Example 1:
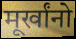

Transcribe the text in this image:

मूर्खांनो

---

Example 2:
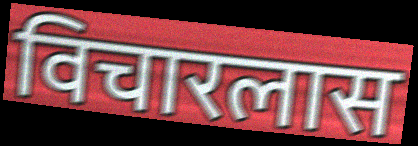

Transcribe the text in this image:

विचारलास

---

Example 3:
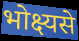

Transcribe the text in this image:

भोक्ष्यसे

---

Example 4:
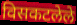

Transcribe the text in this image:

विसकटलेले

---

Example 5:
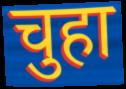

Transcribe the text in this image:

चुहा